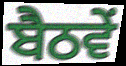
ਬੈਠਵੇਂ